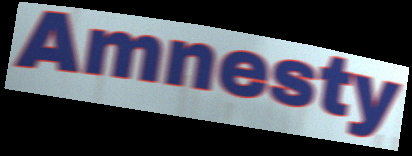
Amnesty